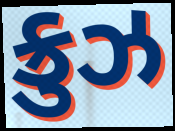
ક્રુઝ